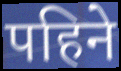
पहिने